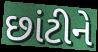
છાંટીને